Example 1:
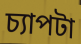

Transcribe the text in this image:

চ্যাপটা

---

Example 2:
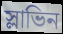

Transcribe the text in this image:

স্লাভিন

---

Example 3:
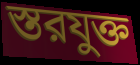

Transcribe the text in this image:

স্তরযুক্ত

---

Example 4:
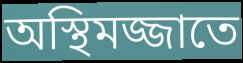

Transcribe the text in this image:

অস্থিমজ্জাতে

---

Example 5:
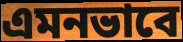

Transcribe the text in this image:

এমনভাবে